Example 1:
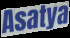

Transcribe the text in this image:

Asatya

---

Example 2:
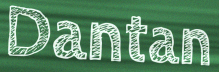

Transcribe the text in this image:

Dantan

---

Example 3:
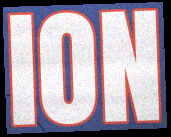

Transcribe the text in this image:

ION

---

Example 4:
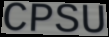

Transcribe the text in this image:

CPSU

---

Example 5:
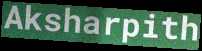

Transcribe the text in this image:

Aksharpith